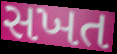
સખત